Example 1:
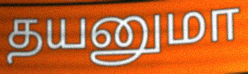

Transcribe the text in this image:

தயனுமா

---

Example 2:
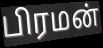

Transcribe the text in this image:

பிரமன்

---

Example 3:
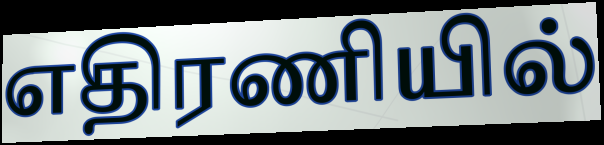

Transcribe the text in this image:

எதிரணியில்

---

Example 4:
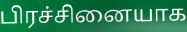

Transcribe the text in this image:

பிரச்சினையாக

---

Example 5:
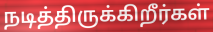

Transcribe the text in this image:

நடித்திருக்கிறீர்கள்